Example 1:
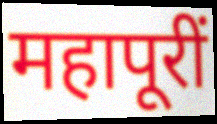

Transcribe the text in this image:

महापूरीं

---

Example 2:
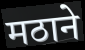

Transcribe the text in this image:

मठाने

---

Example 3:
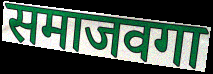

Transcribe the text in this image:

समाजवगा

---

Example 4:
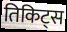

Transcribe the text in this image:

तिकिट्स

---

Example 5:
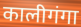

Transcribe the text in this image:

कालीगंगा